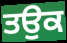
ਤਉਕ